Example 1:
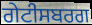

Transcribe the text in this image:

ਗੇਟੀਸਬਰਗ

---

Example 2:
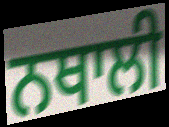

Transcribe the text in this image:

ਨਥਾਲੀ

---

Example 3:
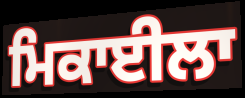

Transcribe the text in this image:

ਮਿਕਾਈਲਾ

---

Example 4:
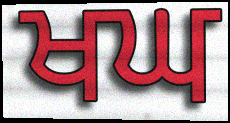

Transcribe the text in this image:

ਖਘ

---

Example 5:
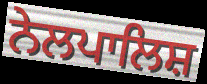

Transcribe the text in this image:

ਨੇਲਪਾਲਿਸ਼